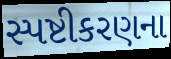
સ્પષ્ટીકરણના